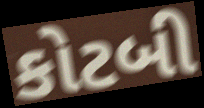
કોટબી